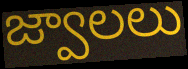
జ్వాలలు